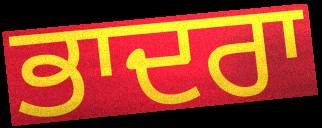
ਭਾਦਰਾ